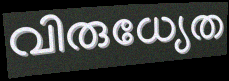
വിരുധ്യേത